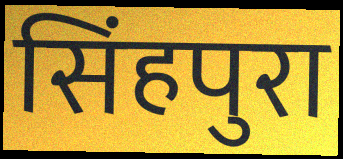
सिंहपुरा